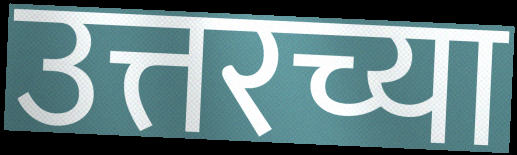
उत्तरच्या